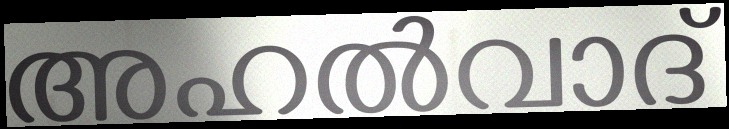
അഹൽവാദ്